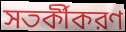
সতর্কীকরণ